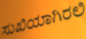
ಸುಖಿಯಾಗಿರಲಿ